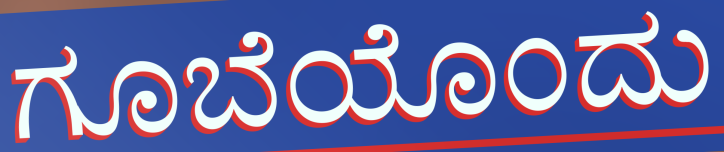
ಗೂಬೆಯೊಂದು